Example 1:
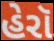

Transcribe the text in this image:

હેરૉ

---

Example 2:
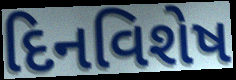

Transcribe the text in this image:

દિનવિશેષ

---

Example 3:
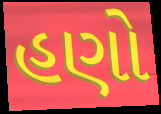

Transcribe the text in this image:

હણો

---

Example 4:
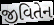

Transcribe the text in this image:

જીવિતેન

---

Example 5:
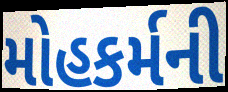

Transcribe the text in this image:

મોહકર્મની